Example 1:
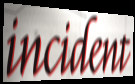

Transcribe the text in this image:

incident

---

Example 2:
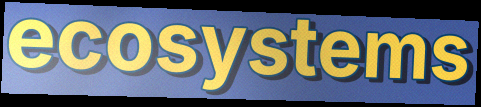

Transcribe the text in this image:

ecosystems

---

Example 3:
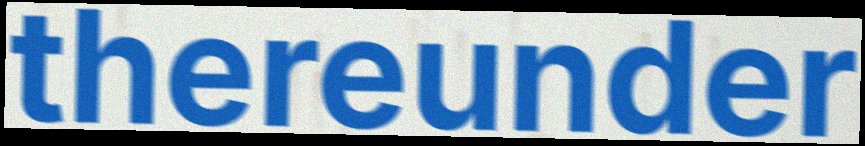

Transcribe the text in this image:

thereunder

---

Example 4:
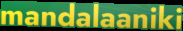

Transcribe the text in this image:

mandalaaniki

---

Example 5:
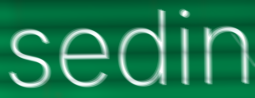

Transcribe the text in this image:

sedin